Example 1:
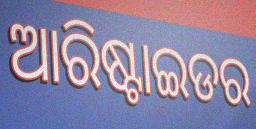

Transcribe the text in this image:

ଆରିଷ୍ଟାଇଡର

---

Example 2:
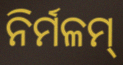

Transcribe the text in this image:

ନିର୍ମଳମ୍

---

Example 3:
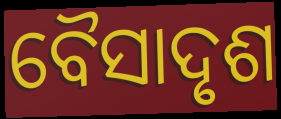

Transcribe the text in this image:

ବୈସାଦୃଶ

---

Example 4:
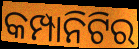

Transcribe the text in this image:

କମ୍ପାନିଟିର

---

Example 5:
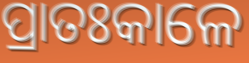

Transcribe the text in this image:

ପ୍ରାତଃକାଳେ